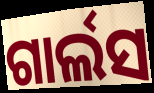
ଗାର୍ଲସ